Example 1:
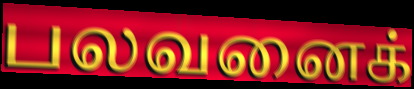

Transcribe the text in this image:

பலவனைக்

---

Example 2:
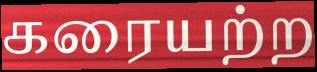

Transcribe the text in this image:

கரையற்ற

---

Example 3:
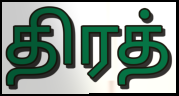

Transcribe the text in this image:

திரத்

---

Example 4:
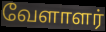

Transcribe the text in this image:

வேளாளர்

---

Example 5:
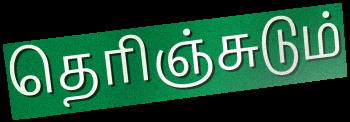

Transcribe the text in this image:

தெரிஞ்சுடும்